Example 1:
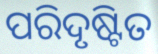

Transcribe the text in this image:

ପରିଦୃଷ୍ଟିତ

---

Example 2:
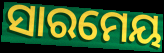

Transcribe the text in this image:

ସାରମେୟ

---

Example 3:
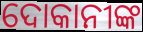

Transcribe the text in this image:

ଦୋକାନୀଙ୍କ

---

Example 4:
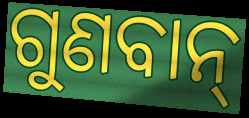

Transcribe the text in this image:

ଗୁଣବାନ୍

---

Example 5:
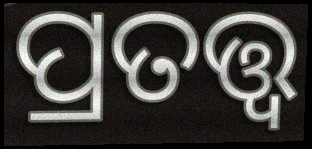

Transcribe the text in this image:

ପ୍ରତତ୍ତ୍ୱ